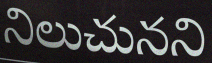
నిలుచునని